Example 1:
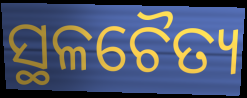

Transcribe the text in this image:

ସ୍ଥଳଚୈତ୍ୟ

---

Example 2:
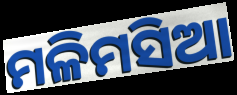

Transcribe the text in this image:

ମଳିମସିଆ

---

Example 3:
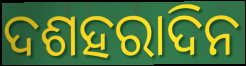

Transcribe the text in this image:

ଦଶହରାଦିନ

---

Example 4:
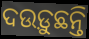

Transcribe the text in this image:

ଦଉଡ଼ୁଛନ୍ତି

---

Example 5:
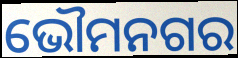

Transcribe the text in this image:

ଭୌମନଗର